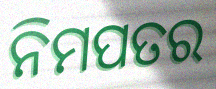
ନିମପତର